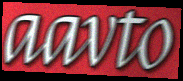
aavto